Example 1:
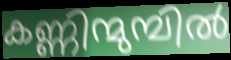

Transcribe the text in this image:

കണ്ണിന്മുമ്പിൽ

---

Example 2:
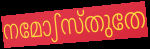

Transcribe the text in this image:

നമോഽസ്തുതേ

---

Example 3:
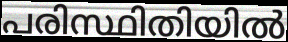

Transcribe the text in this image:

പരിസ്ഥിതിയിൽ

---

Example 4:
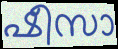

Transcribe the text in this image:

ഷീസാ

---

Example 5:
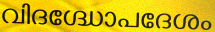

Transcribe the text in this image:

വിദഗ്ദ്ധോപദേശം